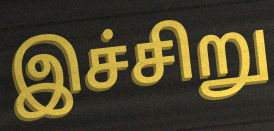
இச்சிறு